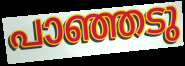
പാഞ്ഞടു